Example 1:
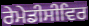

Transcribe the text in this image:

ਰੇਮੇਡੀਸੀਵਿਰ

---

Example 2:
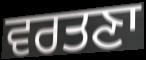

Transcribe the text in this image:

ਵਰਤਣਾ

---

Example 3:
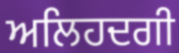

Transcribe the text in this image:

ਅਲਿਹਦਗੀ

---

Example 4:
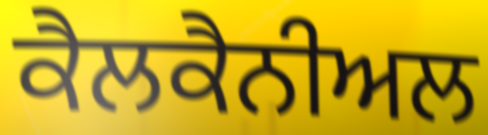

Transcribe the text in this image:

ਕੈਲਕੈਨੀਅਲ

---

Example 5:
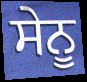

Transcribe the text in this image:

ਸੇਨੂ